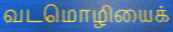
வடமொழியைக்